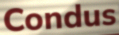
Condus